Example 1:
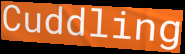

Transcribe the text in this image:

Cuddling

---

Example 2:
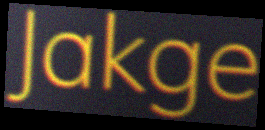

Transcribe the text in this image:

Jakge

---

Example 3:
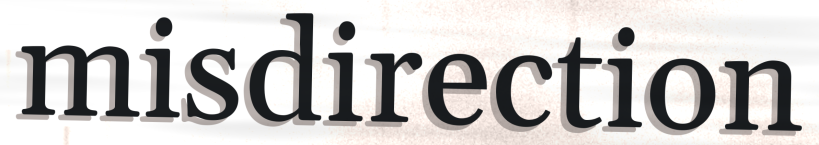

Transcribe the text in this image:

misdirection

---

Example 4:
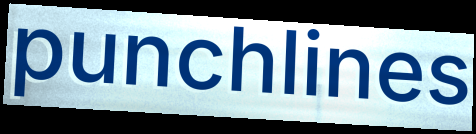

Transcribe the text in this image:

punchlines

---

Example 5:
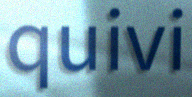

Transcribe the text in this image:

quivi